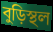
বুড়িস্থল